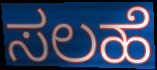
ಸಲಹೆ